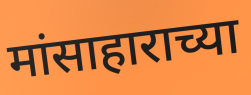
मांसाहाराच्या